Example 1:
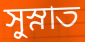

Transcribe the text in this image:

সুস্নাত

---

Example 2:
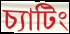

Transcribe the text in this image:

চ্যাটিং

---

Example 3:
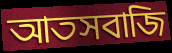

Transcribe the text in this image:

আতসবাজি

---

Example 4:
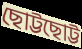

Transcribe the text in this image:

ছোট্টছোট্ট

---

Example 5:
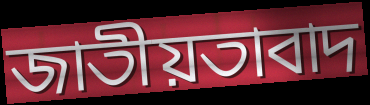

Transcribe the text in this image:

জাতীয়তাবাদ